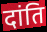
दांति